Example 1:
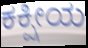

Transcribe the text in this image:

ಕಕ್ಷೀಯ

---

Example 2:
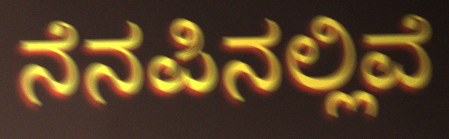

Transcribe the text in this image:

ನೆನಪಿನಲ್ಲಿವೆ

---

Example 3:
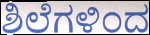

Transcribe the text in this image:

ಶಿಲೆಗಳಿಂದ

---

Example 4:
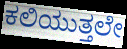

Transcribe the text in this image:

ಕಲಿಯುತ್ತಲೇ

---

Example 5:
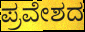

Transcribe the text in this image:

ಪ್ರವೇಶದ